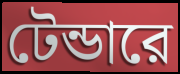
টেন্ডারে